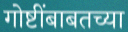
गोष्टींबाबतच्या